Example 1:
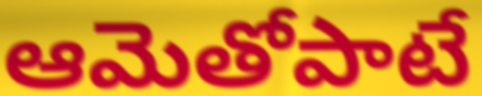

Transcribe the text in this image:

ఆమెతోపాటే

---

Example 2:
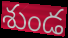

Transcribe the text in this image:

శుండ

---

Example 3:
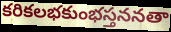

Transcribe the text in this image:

కరికలభకుంభస్తననతా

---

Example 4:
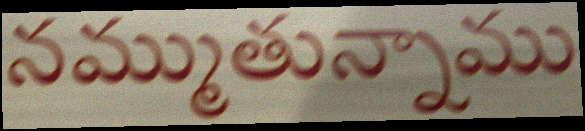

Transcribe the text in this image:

నమ్ముతున్నాము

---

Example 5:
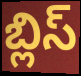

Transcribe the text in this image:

బ్లిస్